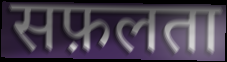
सफ़लता